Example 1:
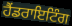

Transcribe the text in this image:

ਹੈਂਡਰਾਇਟਿੰਗ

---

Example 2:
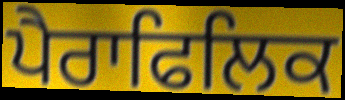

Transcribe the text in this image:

ਪੈਰਾਫਿਲਿਕ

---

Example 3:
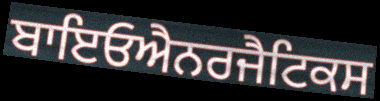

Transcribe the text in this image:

ਬਾਇਓਐਨਰਜੈਟਿਕਸ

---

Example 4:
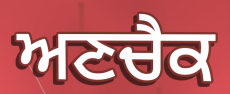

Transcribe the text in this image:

ਅਣਚੈਕ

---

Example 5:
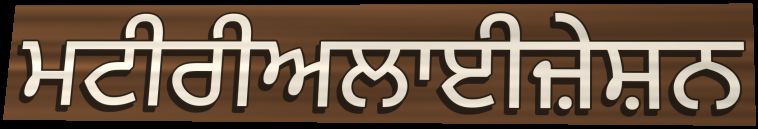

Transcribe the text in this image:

ਮਟੀਰੀਅਲਾਈਜ਼ੇਸ਼ਨ